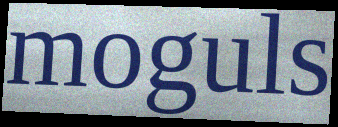
moguls